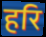
हरि